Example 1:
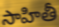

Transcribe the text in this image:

సాహితీ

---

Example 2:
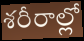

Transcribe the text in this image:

శరీరాల్లో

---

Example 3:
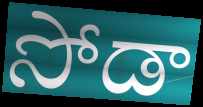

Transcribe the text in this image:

సోడా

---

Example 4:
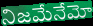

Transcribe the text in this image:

నిజమేనేమో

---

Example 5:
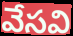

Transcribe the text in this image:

వేసవి